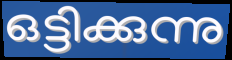
ഒട്ടിക്കുന്നു